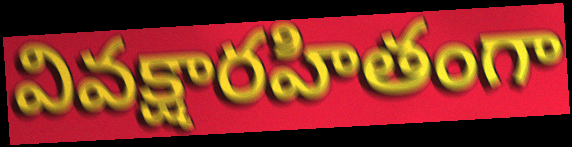
వివక్షారహితంగా